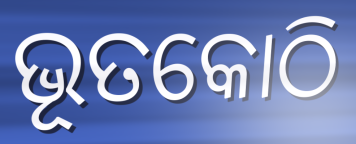
ଭୂତକୋଠି